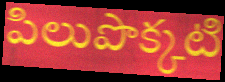
పిలుపొక్కటి